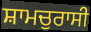
ਸ਼ਾਮਚੁਰਾਸੀ